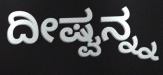
ದೀಷ್ವನ್ನ್ನ